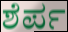
ಶೆರ್ಪ